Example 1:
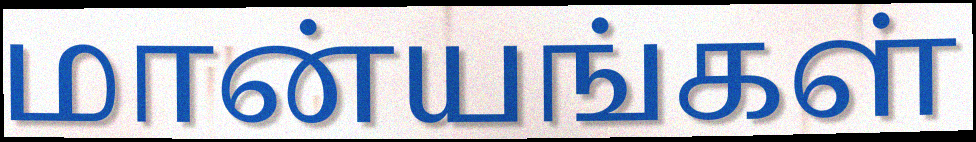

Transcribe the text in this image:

மான்யங்கள்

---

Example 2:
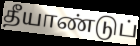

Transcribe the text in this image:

தீயாண்டுப்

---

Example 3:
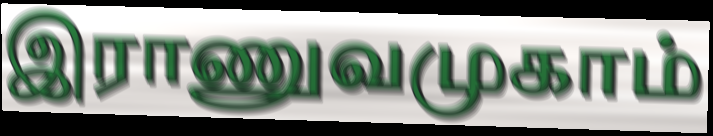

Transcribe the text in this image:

இராணுவமுகாம்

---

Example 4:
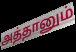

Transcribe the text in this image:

அத்தானும்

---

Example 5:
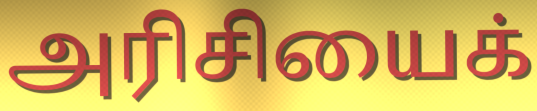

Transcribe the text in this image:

அரிசியைக்